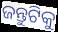
ଜନ୍ତୁଟିକୁ